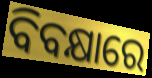
ବିବକ୍ଷାରେ